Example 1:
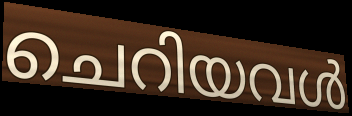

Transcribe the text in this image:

ചെറിയവൾ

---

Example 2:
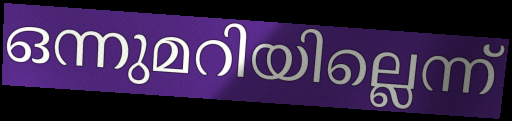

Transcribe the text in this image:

ഒന്നുമറിയില്ലെന്ന്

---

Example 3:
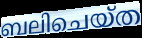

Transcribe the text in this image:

ബലിചെയ്ത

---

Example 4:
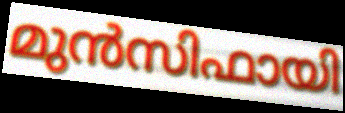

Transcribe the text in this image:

മുൻസിഫായി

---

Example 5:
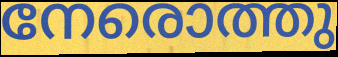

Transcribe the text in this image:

നേരൊത്തു